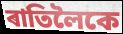
ৰাতিলৈকে